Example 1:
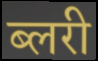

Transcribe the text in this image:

ब्लरी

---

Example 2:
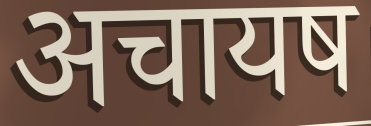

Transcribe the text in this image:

अचायष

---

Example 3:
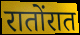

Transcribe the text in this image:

रातोंरात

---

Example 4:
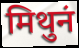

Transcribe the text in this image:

मिथुनं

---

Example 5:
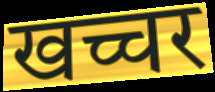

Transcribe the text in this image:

खच्‍चर